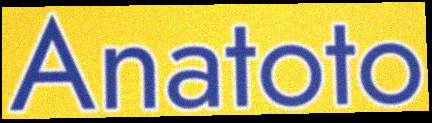
Anatoto